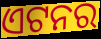
ଏଟନର